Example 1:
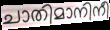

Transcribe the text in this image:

ചാതിമാനിനീ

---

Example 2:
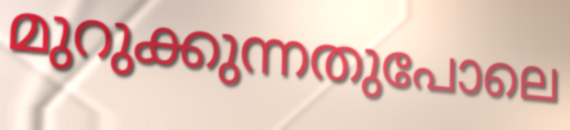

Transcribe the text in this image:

മുറുക്കുന്നതുപോലെ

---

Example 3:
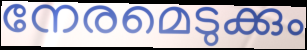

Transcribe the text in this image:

നേരമെടുക്കും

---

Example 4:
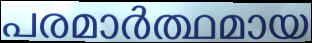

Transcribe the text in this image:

പരമാർത്ഥമായ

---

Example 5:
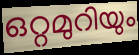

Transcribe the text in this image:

ഒറ്റമുറിയും